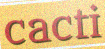
cacti